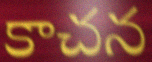
కాచన